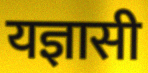
यज्ञासी